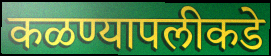
कळण्यापलीकडे